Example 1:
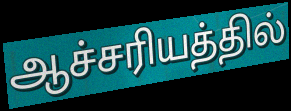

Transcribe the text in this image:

ஆச்சரியத்தில்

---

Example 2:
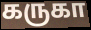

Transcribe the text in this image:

கருகா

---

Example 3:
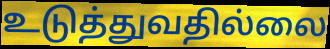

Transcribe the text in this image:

உடுத்துவதில்லை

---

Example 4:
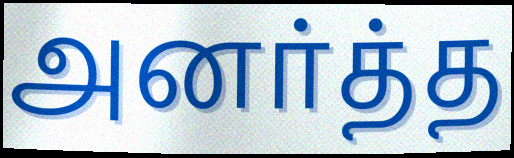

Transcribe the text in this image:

அனர்த்த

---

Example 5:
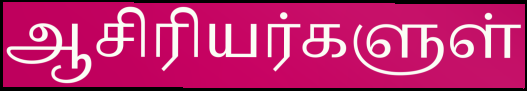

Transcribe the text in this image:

ஆசிரியர்களுள்